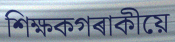
শিক্ষকগৰাকীয়ে